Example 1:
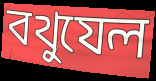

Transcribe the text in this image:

বথুযেল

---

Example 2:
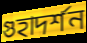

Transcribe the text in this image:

গুহাদর্শন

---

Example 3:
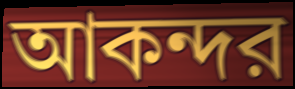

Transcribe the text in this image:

আকন্দর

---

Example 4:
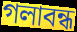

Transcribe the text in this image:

গলাবন্ধ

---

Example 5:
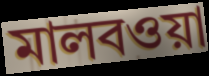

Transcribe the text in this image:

মালবওয়া